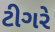
ટીગરે